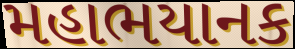
મહાભયાનક